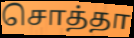
சொத்தா